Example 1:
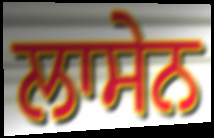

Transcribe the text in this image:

ਲਾਸੇਨ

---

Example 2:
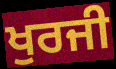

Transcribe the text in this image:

ਖੁਰਜੀ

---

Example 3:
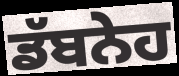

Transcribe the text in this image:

ਡੱਬਨੇਹ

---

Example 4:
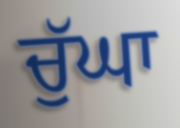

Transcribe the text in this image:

ਚੁੱਘਾ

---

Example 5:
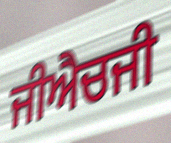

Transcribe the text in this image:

ਜੀਐਚਜੀ